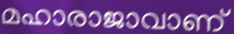
മഹാരാജാവാണ്